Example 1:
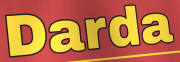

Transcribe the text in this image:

Darda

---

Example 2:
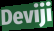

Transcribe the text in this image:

Deviji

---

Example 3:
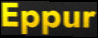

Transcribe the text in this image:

Eppur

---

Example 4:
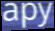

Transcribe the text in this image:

apy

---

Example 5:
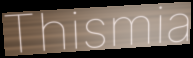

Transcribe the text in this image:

Thismia